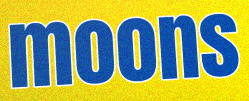
moons